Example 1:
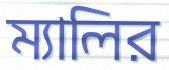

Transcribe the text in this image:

ম্যালির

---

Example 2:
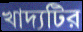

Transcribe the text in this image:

খাদ্যটির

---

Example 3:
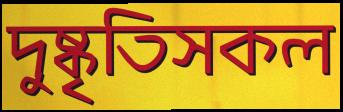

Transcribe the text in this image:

দুষ্কৃতিসকল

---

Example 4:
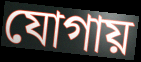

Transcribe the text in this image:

যোগায়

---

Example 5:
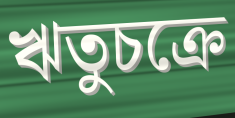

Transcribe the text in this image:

ঋতুচক্রে